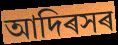
আদিৰসৰ